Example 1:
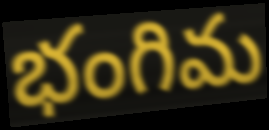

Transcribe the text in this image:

భంగిమ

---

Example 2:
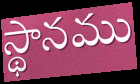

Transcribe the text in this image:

స్థానము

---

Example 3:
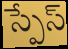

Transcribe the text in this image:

స్పేస్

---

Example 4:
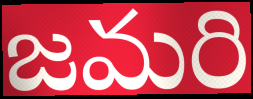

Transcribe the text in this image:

జమరి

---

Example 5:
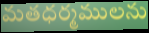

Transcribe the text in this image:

మతధర్మములను